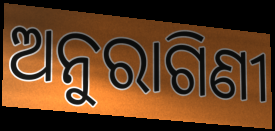
ଅନୁରାଗିଣୀ